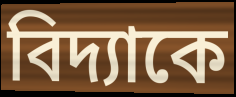
বিদ্যাকে